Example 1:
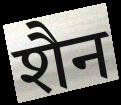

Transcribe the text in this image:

शैन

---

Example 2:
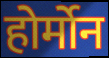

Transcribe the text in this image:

होर्मोन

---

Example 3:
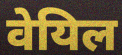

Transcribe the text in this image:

वेयिल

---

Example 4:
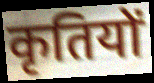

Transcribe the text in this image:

कृतियों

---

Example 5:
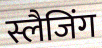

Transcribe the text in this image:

स्लैजिंग